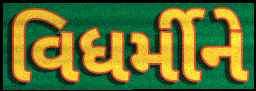
વિધર્મીને